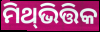
ମିଥ୍‍ଭିତ୍ତିକ